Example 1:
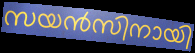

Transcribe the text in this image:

സയൻസിനായി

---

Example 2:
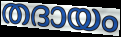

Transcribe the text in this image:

തദായം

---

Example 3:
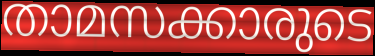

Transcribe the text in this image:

താമസക്കാരുടെ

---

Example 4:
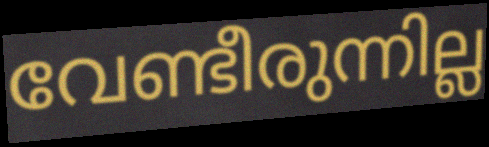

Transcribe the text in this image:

വേണ്ടീരുന്നില്ല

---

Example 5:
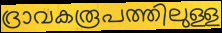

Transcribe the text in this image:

ദ്രാവകരൂപത്തിലുള്ള